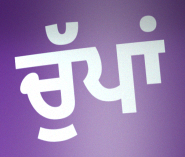
ਚੁੱਪਾਂ